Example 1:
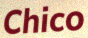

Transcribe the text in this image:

Chico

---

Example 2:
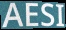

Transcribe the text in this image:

AESI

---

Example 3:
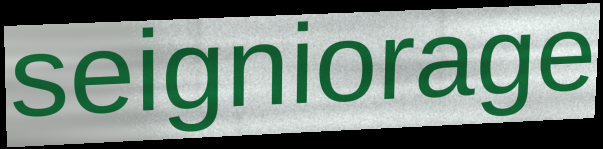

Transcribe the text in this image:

seigniorage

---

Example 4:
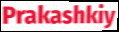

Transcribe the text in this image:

Prakashkiy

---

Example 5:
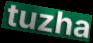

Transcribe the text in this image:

tuzha